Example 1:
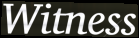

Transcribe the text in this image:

Witness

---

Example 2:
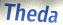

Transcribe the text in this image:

Theda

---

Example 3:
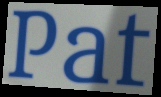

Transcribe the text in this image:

Pat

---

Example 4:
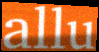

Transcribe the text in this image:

allu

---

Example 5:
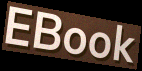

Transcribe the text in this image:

EBook